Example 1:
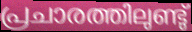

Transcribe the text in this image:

പ്രചാരത്തിലുണ്ടു്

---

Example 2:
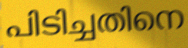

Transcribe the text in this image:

പിടിച്ചതിനെ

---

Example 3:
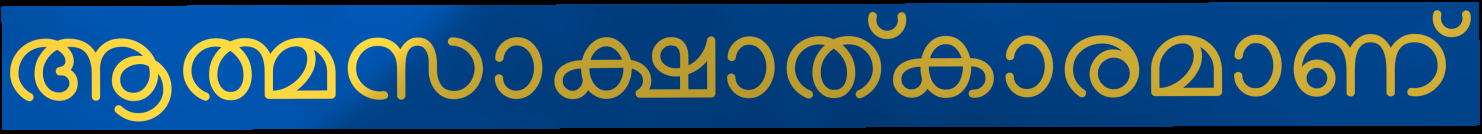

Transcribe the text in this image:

ആത്മസാക്ഷാത്കാരമാണ്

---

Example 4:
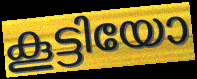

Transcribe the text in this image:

കൂട്ടിയോ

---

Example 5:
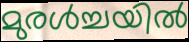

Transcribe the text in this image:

മുരൾച്ചയിൽ